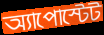
অ্যাপোস্টেট